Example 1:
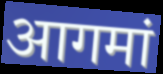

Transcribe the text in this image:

आगमां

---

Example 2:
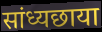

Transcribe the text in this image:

सांध्यछाया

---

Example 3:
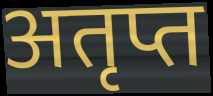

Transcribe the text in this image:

अतृप्त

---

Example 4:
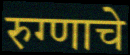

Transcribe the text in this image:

रुग्णाचे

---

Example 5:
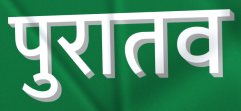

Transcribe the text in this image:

पुरातव